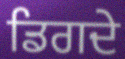
ਡਿਗਦੇ